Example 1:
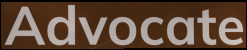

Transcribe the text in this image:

Advocate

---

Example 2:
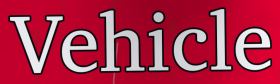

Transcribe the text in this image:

Vehicle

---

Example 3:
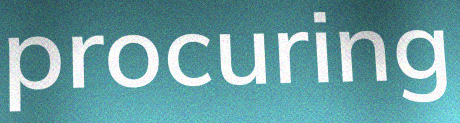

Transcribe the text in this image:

procuring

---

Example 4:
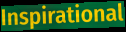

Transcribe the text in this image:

Inspirational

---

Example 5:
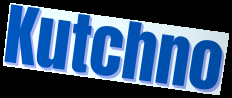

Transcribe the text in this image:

Kutchno